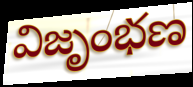
విజృంభణ